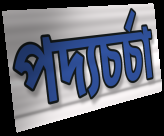
পদ্যচর্চা